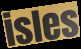
isles